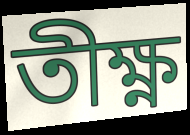
তীক্ষ্ণ